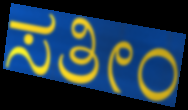
ಸತೀಂ